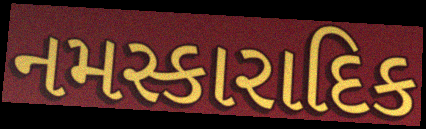
નમસ્કારાદિક